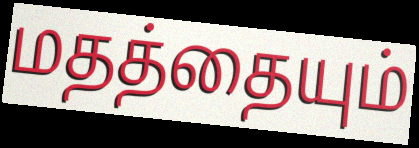
மதத்தையும்